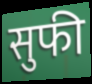
सुफी